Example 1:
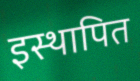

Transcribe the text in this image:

इस्थापित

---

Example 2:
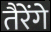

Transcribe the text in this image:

तैरेंगे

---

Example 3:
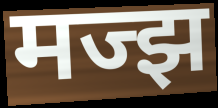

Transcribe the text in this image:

मज्झ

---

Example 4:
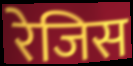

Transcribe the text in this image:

रेजिस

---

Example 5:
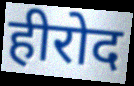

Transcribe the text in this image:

हीरोद